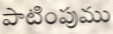
పాటింపుము